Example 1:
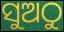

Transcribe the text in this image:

ସୁଅଠୁ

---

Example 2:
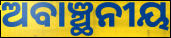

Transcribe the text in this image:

ଅବାଞ୍ଛନୀୟ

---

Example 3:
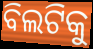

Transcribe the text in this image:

ବିଲଟିକୁ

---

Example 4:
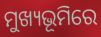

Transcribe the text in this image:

ମୁଖ୍ୟଭୂମିରେ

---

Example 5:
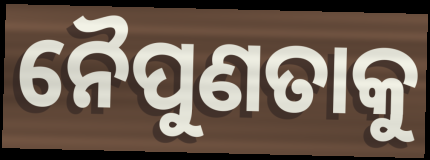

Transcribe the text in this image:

ନୈପୁଣତାକୁ